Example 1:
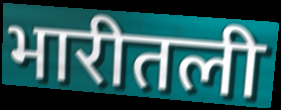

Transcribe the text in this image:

भारीतली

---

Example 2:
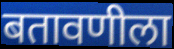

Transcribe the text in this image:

बतावणीला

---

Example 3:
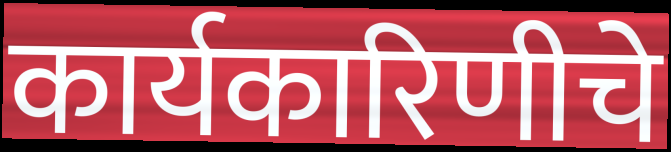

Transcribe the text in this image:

कार्यकारिणीचे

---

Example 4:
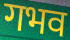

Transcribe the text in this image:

गभव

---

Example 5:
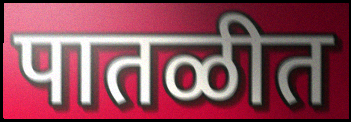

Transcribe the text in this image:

पातळीत